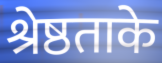
श्रेष्ठताके